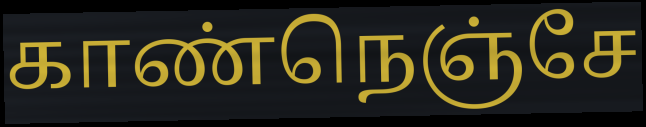
காண்நெஞ்சே